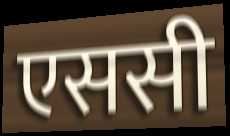
एससी